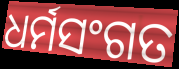
ଧର୍ମସଂଗତ